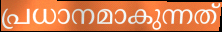
പ്രധാനമാകുന്നത്